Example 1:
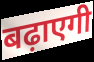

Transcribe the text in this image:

बढ़ाएगी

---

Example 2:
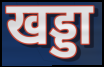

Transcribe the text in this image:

खड्डा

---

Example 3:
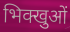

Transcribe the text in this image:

भिक्खुओं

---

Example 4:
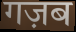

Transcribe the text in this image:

गज़ब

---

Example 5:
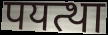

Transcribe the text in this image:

पयत्था